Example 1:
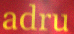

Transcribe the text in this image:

adru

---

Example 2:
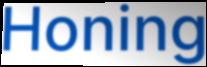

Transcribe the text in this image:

Honing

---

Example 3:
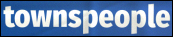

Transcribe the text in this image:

townspeople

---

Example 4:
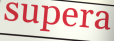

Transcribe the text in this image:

supera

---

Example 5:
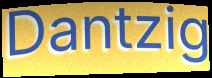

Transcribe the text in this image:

Dantzig